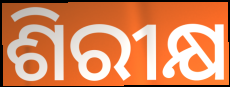
ଶିରୀକ୍ଷ